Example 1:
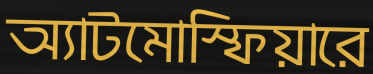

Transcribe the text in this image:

অ্যাটমোস্ফিয়ারে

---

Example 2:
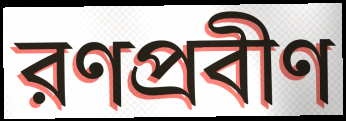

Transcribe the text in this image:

রণপ্রবীণ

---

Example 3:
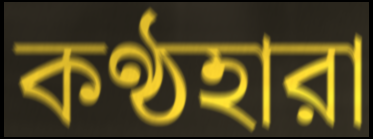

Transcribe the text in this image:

কণ্ঠহারা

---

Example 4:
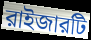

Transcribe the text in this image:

রাইজারটি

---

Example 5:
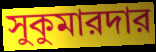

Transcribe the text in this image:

সুকুমারদার